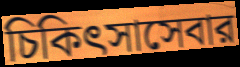
চিকিৎসাসেবার